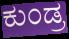
ಕುಂಡ್ರ